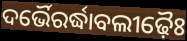
ଦର୍ଭୈରର୍ଦ୍ଧାବଲୀଢ଼ୈଃ